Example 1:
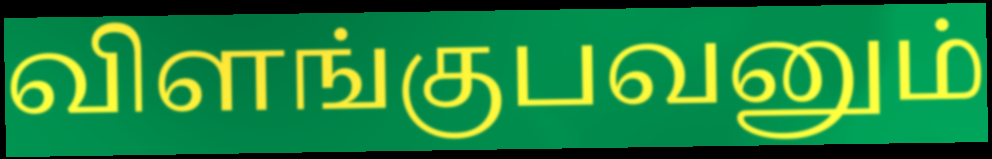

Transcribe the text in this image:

விளங்குபவனும்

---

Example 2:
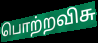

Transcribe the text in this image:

பொற்றவிசு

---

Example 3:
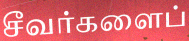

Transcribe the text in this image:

சீவர்களைப்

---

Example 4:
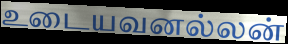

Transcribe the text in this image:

உடையவனல்லன்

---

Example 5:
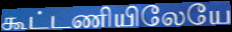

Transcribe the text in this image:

கூட்டணியிலேயே